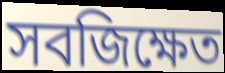
সবজিক্ষেত